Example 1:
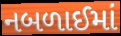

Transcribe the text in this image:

નબળાઈમાં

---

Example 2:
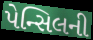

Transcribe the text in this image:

પેન્સિલની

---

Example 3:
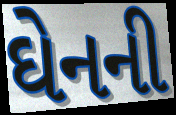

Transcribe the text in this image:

ઘેનની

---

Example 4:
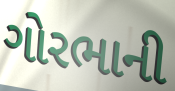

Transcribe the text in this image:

ગોરભાની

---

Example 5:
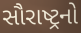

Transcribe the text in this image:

સૌરાષ્ટ્રનો